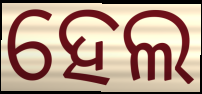
ହେଲ